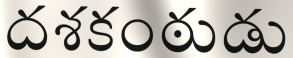
దశకంఠుడు